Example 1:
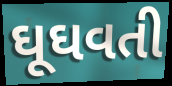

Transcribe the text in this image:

ઘૂઘવતી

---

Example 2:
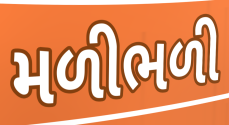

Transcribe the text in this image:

મળીભળી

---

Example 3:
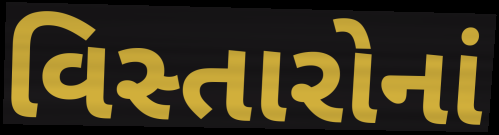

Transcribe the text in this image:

વિસ્તારોનાં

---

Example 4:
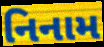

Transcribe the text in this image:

નિનામ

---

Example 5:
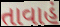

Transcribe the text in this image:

તાવાહં